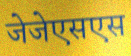
जेजेएसएस